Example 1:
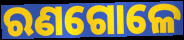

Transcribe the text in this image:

ରଣଗୋଳେ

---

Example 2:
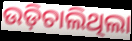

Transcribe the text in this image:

ଉଡ଼ିଚାଲିଥିଲା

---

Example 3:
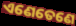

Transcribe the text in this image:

ଏଣେତେଣେ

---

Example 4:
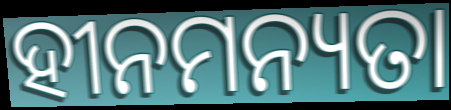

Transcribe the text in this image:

ହୀନମନ୍ୟତା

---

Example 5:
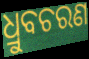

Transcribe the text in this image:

ଧ୍ରୁବଚରଣ